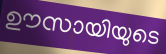
ഊസായിയുടെ